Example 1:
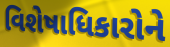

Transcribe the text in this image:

વિશેષાધિકારોને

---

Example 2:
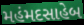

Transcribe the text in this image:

મહંમદસાહેબ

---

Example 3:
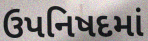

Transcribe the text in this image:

ઉપનિષદમાં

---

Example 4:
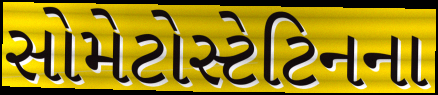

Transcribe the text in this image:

સોમેટોસ્ટેટિનના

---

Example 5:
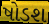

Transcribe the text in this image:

ષોડશ